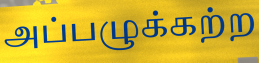
அப்பழுக்கற்ற